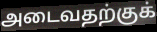
அடைவதற்குக்